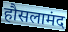
हौसलामंद